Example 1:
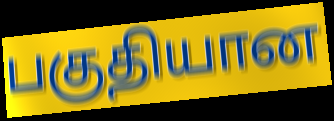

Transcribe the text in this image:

பகுதியான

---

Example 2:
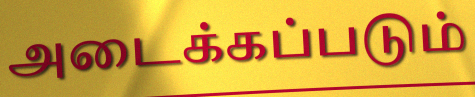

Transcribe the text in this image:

அடைக்கப்படும்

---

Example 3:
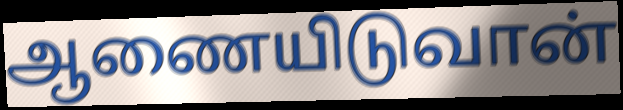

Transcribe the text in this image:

ஆணையிடுவான்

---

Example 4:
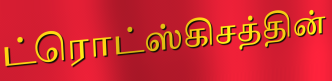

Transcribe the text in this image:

ட்ரொட்ஸ்கிசத்தின்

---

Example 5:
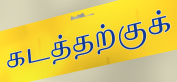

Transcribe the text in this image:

கடத்தற்குக்